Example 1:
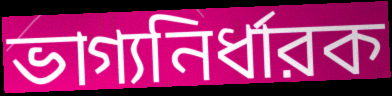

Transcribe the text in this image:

ভাগ্যনির্ধারক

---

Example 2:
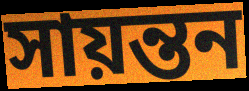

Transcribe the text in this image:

সায়ন্তন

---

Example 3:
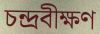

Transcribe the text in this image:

চন্দ্রবীক্ষণ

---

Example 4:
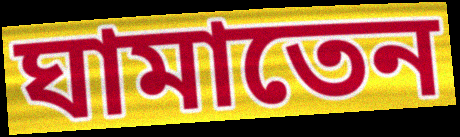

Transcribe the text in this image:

ঘামাতেন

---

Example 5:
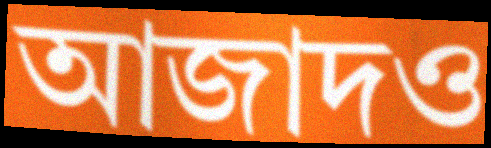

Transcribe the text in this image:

আজাদও